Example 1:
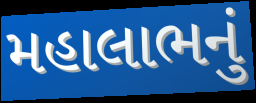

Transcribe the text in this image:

મહાલાભનું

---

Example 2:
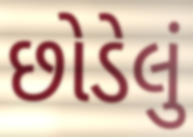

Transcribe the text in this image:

છોડેલું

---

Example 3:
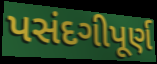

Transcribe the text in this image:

પસંદગીપૂર્ણ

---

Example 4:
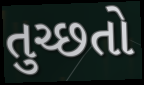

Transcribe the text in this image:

તુચ્છતો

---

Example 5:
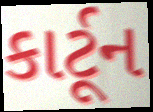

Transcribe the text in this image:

કાર્ટૂન